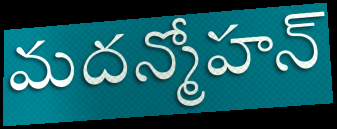
మదన్మోహన్